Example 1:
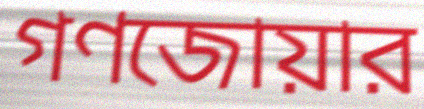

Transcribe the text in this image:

গণজোয়ার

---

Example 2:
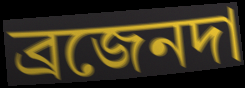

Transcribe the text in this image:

ব্রজেনদা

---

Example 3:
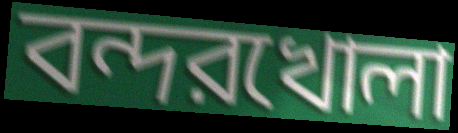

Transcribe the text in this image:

বন্দরখোলা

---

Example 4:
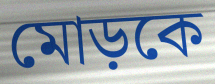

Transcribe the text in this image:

মোড়কে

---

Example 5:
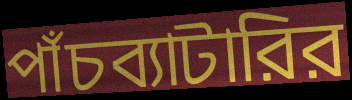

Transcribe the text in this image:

পাঁচব্যাটারির